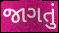
જાગતું